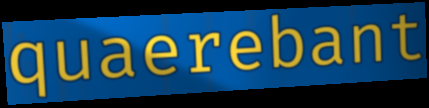
quaerebant